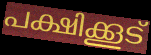
പക്ഷിക്കൂട്